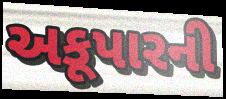
અકૂપારની